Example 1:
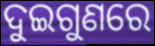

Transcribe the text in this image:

ଦୁଇଗୁଣରେ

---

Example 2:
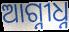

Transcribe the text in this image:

ଆଗ୍ନୀଧ୍ନ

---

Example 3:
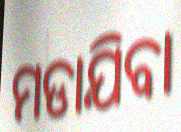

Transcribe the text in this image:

ମଡାଯିବା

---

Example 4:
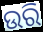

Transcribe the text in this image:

ଉରି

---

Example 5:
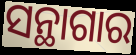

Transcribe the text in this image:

ସନ୍ଥାଗାର